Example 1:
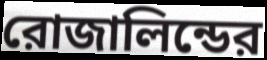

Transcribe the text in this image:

রোজালিন্ডের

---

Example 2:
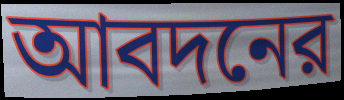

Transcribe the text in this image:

আবদনের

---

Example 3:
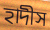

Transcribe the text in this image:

হাদীস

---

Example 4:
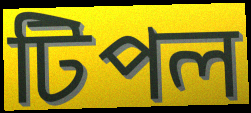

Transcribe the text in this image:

টিপল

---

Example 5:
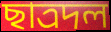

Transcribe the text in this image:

ছাত্রদল